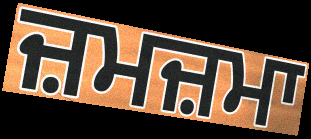
ਜ਼ਮਜ਼ਮਾ